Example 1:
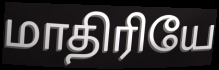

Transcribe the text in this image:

மாதிரியே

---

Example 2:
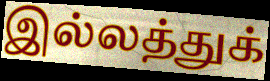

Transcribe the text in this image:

இல்லத்துக்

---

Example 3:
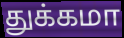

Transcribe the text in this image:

துக்கமா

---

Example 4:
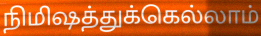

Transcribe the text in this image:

நிமிஷத்துக்கெல்லாம்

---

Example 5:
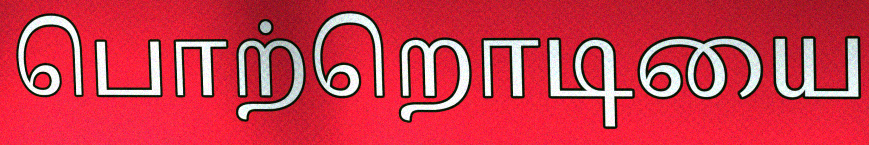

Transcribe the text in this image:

பொற்றொடியை